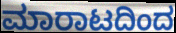
ಮಾರಾಟದಿಂದ